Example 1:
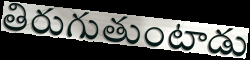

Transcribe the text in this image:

తిరుగుతుంటాడు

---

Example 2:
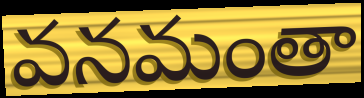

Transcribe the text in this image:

వనమంతా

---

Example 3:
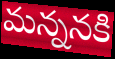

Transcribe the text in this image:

మన్ననకి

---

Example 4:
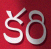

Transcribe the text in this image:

కరి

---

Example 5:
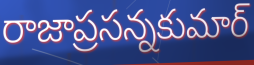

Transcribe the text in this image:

రాజాప్రసన్నకుమార్